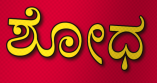
ಶೋಧ